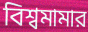
বিশ্বমামার